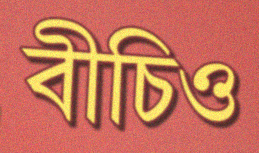
বীচিও